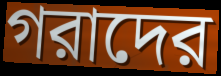
গরাদের